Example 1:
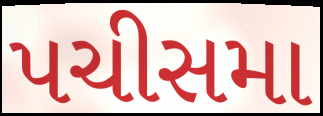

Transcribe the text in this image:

પચીસમા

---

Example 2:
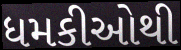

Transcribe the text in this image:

ધમકીઓથી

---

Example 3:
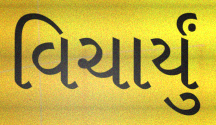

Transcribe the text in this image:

વિચાર્યું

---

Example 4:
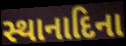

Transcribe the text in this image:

સ્થાનાદિના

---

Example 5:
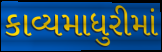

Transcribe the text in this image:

કાવ્યમાધુરીમાં